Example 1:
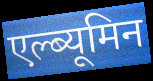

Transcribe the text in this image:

एल्ब्यूमिन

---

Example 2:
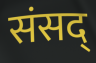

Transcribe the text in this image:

संसद्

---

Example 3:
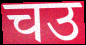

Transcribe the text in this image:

चउ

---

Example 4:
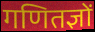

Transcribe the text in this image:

गणितज्ञों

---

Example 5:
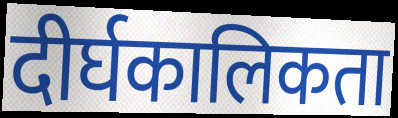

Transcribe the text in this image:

दीर्घकालिकता